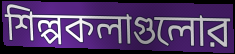
শিল্পকলাগুলোর